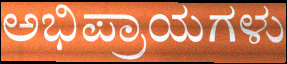
ಅಭಿಪ್ರಾಯಗಳು